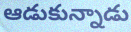
ఆడుకున్నాడు